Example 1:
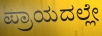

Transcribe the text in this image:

ಪ್ರಾಯದಲ್ಲೇ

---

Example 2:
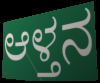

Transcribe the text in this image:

ಆಳ್ತನ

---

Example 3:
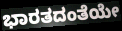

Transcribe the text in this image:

ಭಾರತದಂತೆಯೇ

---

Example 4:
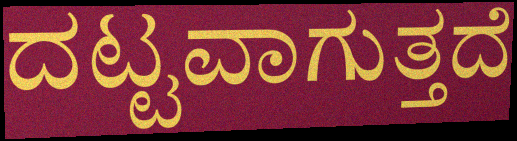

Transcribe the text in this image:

ದಟ್ಟವಾಗುತ್ತದೆ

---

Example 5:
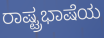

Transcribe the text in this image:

ರಾಷ್ಟ್ರಭಾಷೆಯ